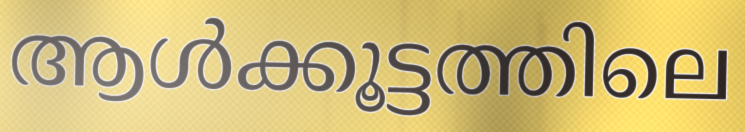
ആൾക്കൂട്ടത്തിലെ